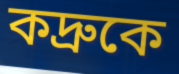
কদ্রুকে